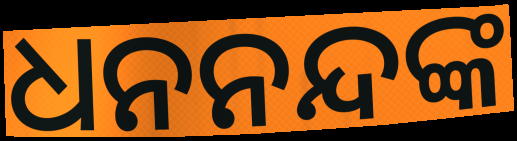
ଧନନନ୍ଦଙ୍କ